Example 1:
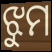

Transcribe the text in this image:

ଝୁମ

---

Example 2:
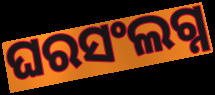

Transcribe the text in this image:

ଘରସଂଲଗ୍ନ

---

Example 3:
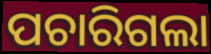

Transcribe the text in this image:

ପଚାରିଗଲା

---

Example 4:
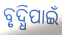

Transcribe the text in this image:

ବୃଦ୍ଧିପାଇଁ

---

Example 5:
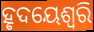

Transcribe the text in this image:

ହୃଦୟେଶ୍ଵରି